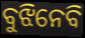
ବୁଝିନେବି